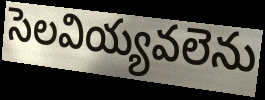
సెలవియ్యవలెను